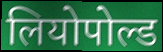
लियोपोल्ड